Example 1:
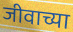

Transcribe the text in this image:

जीवाच्या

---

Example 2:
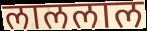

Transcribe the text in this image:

लाललाल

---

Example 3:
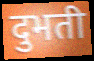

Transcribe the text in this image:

दुभती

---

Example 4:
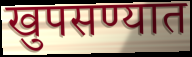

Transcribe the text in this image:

खुपसण्यात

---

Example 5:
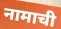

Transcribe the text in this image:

नामाची